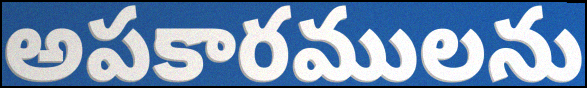
అపకారములను